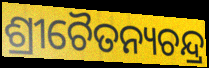
ଶ୍ରୀଚୈତନ୍ୟଚନ୍ଦ୍ର